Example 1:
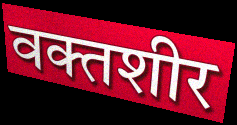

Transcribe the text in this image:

वक्तशीर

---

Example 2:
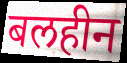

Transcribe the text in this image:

बलहीन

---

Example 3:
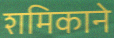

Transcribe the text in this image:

शमिकाने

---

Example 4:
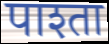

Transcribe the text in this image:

पाश्ता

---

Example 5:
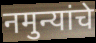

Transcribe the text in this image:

नमुन्यांचे